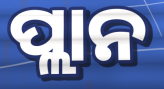
ପ୍ଲାନ